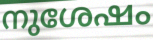
നുശേഷം